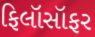
ફિલૉસૉફર